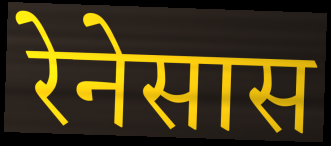
रेनेसास